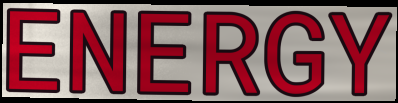
ENERGY